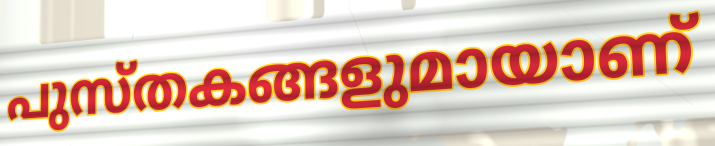
പുസ്തകങ്ങളുമായാണ്